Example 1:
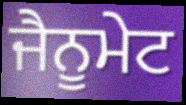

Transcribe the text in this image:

ਜੈਨੂਮੇਟ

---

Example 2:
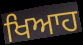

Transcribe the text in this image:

ਖਿਆਹ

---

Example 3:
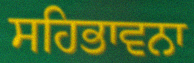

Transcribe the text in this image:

ਸਹਿਭਾਵਨਾ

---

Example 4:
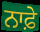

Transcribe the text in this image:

ਨਾਫ਼ੇ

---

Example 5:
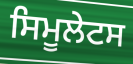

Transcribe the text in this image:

ਸਿਮੂਲੇਟਸ